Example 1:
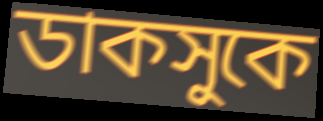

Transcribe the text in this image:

ডাকসুকে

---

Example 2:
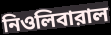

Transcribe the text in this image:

নিওলিবারাল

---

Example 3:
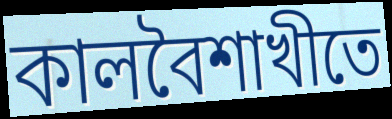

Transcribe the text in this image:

কালবৈশাখীতে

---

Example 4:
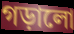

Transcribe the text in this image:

গড়ালো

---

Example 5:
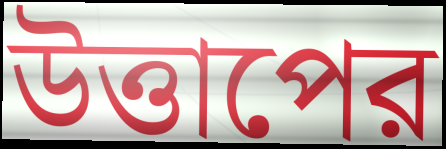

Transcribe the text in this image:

উত্তাপের